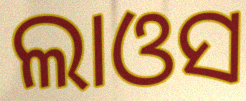
ଲାଓସ